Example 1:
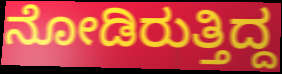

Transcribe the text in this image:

ನೋಡಿರುತ್ತಿದ್ದ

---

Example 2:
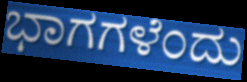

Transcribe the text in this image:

ಭಾಗಗಳೆಂದು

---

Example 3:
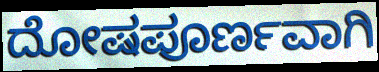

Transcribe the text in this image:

ದೋಷಪೂರ್ಣವಾಗಿ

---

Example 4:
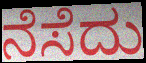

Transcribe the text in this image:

ನೆಸೆದು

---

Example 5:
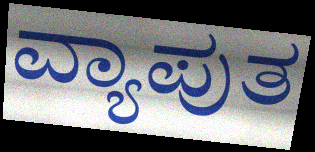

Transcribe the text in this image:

ವ್ಯಾಪುತ